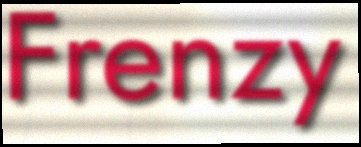
Frenzy